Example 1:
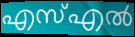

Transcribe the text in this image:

എസ്എൽ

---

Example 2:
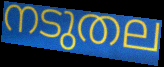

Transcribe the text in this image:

നടുതല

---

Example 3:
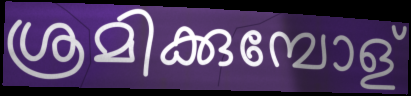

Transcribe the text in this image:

ശ്രമിക്കുമ്പോള്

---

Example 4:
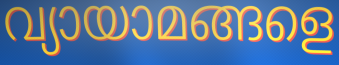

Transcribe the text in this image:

വ്യായാമങ്ങളെ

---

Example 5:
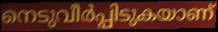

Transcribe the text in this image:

നെടുവീർപ്പിടുകയാണ്